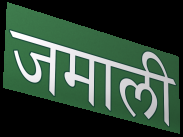
जमाली